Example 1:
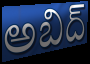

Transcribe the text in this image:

అబిద్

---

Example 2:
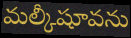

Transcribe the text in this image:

మల్కీషూవను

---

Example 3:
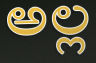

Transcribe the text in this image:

అల్ల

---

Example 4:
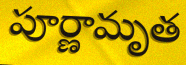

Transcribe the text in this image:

పూర్ణామృత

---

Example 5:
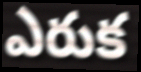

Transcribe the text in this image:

ఎరుక